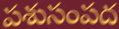
పశుసంపద